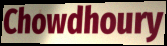
Chowdhoury